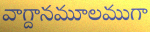
వాగ్దానమూలముగా